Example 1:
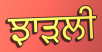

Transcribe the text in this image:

ਝਾੜਲੀ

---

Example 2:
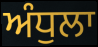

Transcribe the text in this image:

ਅੰਧੁਲਾ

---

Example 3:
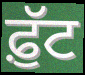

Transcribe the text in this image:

ਫ਼ੁੱਟ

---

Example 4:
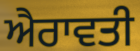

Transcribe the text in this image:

ਐਰਾਵਤੀ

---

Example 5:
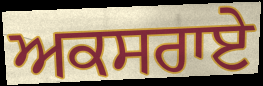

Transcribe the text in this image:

ਅਕਸਰਾਏ